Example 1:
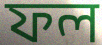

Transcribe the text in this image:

ফল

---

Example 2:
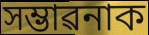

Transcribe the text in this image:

সম্ভাৱনাক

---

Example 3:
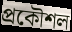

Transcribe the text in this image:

প্ৰকৌশল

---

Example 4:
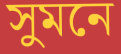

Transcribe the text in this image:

সুমনে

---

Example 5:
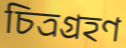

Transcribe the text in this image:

চিত্ৰগ্ৰহণ